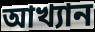
আখ্যান